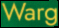
Warg